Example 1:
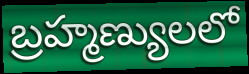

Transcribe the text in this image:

బ్రహ్మణ్యులలో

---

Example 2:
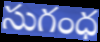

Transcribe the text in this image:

సుగంధ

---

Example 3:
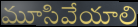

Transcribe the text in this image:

మూసివేయాలి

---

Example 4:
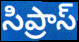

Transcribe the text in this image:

సిప్రాస్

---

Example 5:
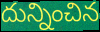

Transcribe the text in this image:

దున్నించిన